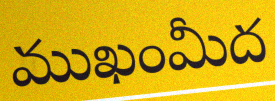
ముఖంమీద